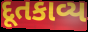
દૂતકાવ્ય